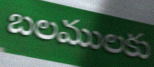
బలములకు